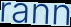
rann